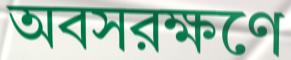
অবসরক্ষণে